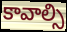
కావాల్సి